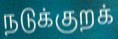
நடுக்குறக்